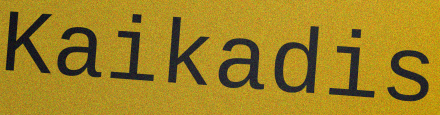
Kaikadis